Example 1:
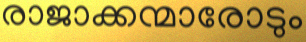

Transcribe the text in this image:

രാജാക്കന്മാരോടും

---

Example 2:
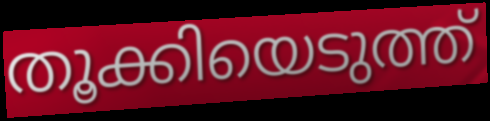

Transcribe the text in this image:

തൂക്കിയെടുത്ത്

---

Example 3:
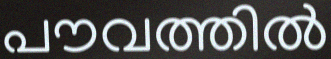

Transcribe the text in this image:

പൗവത്തിൽ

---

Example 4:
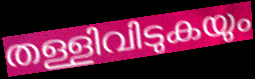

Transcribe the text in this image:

തള്ളിവിടുകയും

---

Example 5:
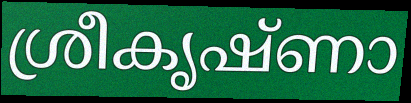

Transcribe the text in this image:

ശ്രീകൃഷ്ണാ